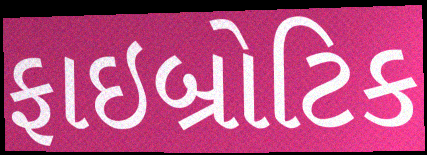
ફાઇબ્રોટિક